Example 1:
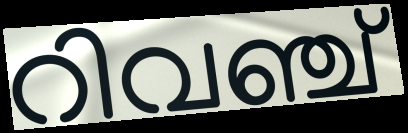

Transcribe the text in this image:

റിവഞ്ച്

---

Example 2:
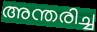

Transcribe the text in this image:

അന്തരിച്ച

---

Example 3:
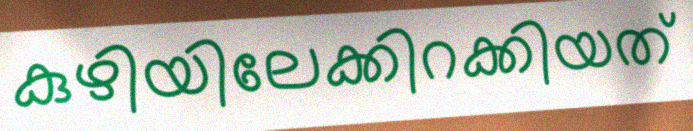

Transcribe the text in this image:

കുഴിയിലേക്കിറക്കിയത്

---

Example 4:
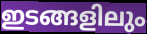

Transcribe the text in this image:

ഇടങ്ങളിലും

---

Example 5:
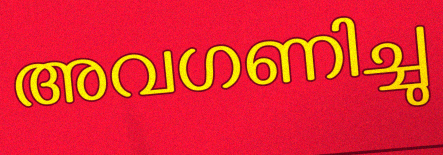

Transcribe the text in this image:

അവഗണിച്ചു